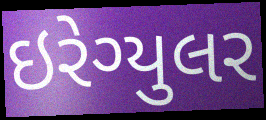
ઇરેગ્યુલર